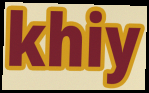
khiy